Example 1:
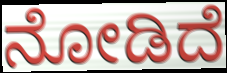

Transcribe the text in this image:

ನೋಡಿದೆ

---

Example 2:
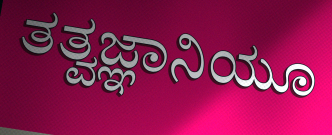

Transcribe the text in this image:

ತತ್ವಜ್ಞಾನಿಯೂ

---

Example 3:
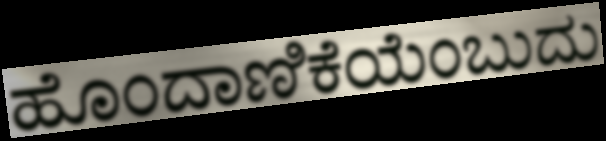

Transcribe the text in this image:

ಹೊಂದಾಣಿಕೆಯೆಂಬುದು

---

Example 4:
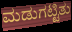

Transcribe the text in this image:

ಮಡುಗಟ್ಟಿತು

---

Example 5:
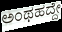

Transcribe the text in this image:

ಅಂಥಹದ್ದೇ